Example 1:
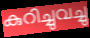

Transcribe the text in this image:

കുറിച്ചുവച്ചു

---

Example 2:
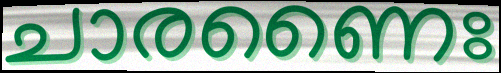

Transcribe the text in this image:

ചാരണൈഃ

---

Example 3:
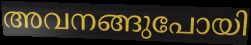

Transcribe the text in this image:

അവനങ്ങുപോയി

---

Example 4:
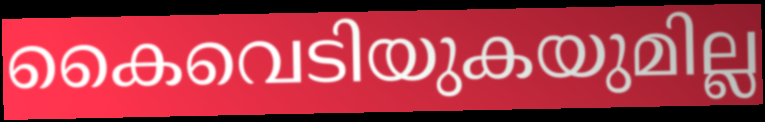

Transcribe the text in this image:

കൈവെടിയുകയുമില്ല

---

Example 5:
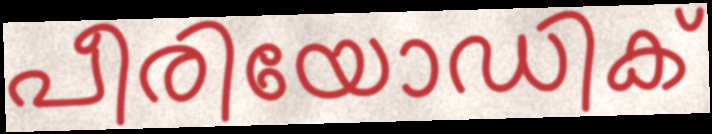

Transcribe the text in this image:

പീരിയോഡിക്